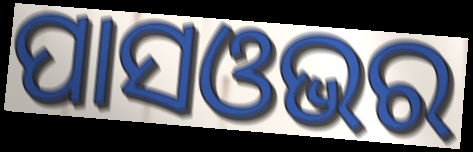
ପାସଓଭର